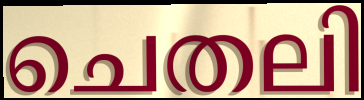
ചെതലി